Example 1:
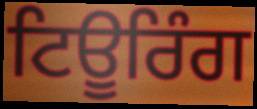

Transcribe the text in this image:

ਟਿਊਰਿੰਗ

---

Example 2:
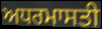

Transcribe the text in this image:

ਅਧਰਮਾਸਤੀ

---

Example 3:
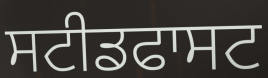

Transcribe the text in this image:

ਸਟੀਡਫਾਸਟ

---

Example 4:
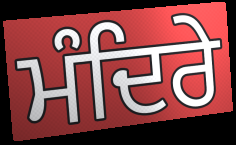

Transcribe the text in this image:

ਮੰਦਿਰੇ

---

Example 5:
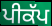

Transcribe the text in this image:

ਪੀਕੱਪ